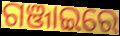
ଗଞ୍ଜାଇରେ